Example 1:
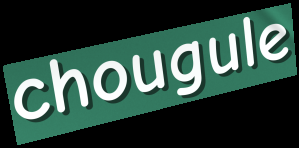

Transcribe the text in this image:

chougule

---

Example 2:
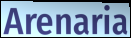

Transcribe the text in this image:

Arenaria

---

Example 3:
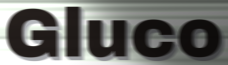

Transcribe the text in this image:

Gluco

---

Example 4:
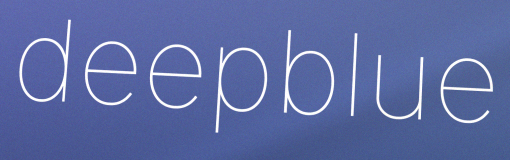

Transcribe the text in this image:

deepblue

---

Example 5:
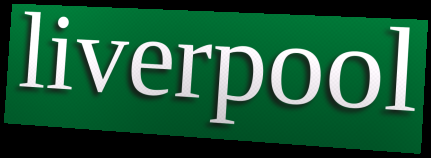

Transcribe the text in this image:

liverpool